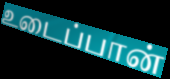
உடைப்பான்